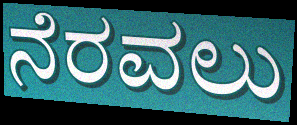
ನೆರವಲು